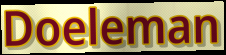
Doeleman